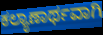
ಕಲ್ಯಾಣಾರ್ಥವಾಗಿ